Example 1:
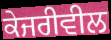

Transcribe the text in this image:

ਕੇਜਰੀਵੀਲ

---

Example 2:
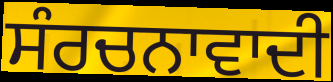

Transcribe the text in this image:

ਸੰਰਚਨਾਵਾਦੀ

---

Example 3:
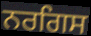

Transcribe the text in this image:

ਨਰਗਿਸ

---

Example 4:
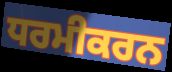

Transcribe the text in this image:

ਧਰਮੀਕਰਨ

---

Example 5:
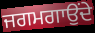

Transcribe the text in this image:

ਜਗਮਗਾਉਂਦੇ